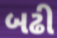
બઢી